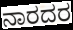
ನಾರದರ